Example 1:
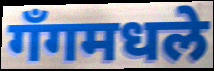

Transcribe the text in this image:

गँगमधले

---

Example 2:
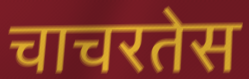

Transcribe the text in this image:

चाचरतेस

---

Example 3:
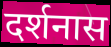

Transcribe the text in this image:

दर्शनास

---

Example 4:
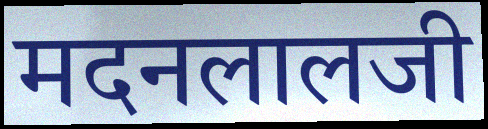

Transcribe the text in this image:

मदनलालजी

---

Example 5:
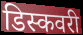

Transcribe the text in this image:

डिस्कवरी